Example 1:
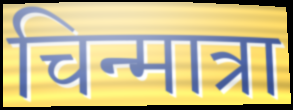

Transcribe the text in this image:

चिन्मात्रा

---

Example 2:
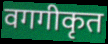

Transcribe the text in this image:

वगगीकृत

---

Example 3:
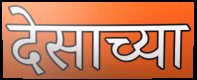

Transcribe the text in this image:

देसाच्या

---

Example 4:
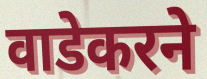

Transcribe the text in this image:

वाडेकरने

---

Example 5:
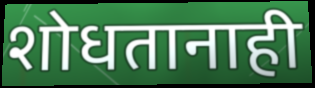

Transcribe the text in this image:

शोधतानाही